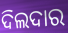
ଦିଲଦାର